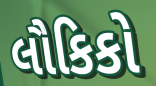
લૌકિકો